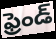
ఫ్రెండ్